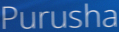
Purusha